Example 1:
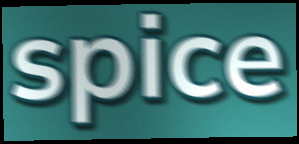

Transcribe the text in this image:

spice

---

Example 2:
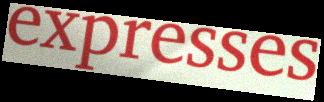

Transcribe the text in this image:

expresses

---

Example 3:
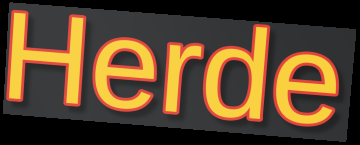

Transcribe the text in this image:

Herde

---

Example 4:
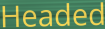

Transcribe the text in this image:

Headed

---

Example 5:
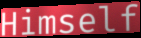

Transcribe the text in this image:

Himself